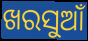
ଖରସୁଆଁ